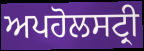
ਅਪਹੋਲਸਟ੍ਰੀ